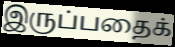
இருப்பதைக்